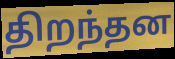
திறந்தன